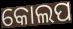
କୋଲପ